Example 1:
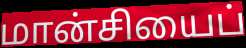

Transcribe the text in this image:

மான்சியைப்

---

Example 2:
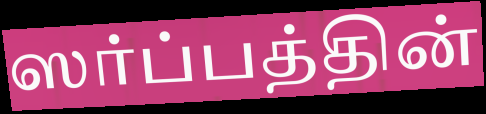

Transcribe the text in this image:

ஸர்ப்பத்தின்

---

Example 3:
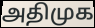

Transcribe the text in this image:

அதிமுக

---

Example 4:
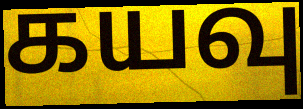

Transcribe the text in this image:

கயவு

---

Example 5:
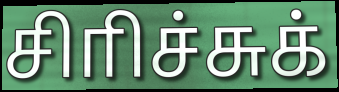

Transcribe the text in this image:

சிரிச்சுக்